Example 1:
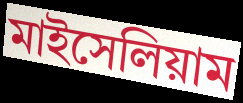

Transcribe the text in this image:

মাইসেলিয়াম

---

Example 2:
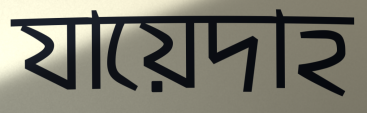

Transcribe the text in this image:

যায়েদাহ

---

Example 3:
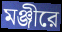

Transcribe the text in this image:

মঞ্জীরে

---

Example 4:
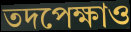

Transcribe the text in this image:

তদপেক্ষাও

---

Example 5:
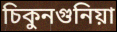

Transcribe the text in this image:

চিকুনগুনিয়া